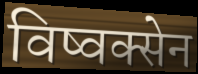
विष्वक्सेन